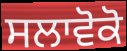
ਸਲਾਵੋਕੋ